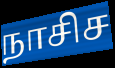
நாசிச